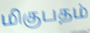
மிகுபதம்